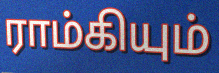
ராம்கியும்